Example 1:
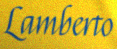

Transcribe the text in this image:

Lamberto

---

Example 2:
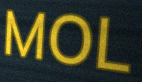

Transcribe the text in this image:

MOL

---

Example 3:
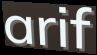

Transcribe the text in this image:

arif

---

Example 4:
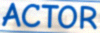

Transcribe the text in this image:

ACTOR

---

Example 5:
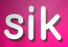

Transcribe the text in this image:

sik